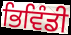
ਭਿਵਿੰਡੀ